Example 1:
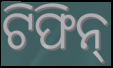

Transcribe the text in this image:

ଟିଫିନ୍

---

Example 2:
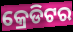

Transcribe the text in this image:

କ୍ରେଡିଟର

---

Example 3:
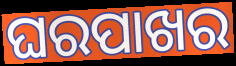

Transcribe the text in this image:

ଘରପାଖର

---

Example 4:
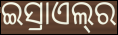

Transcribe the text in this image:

ଇସ୍ରାଏଲ୍‌ର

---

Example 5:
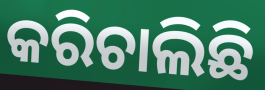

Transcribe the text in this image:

କରିଚାଲିଛି